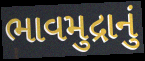
ભાવમુદ્રાનું